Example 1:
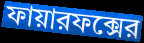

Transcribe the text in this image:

ফায়ারফক্সের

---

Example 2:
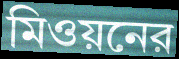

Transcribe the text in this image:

মিওয়নের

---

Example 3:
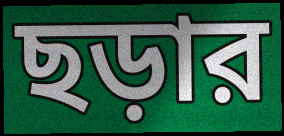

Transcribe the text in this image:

ছড়ার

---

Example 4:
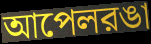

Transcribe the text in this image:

আপেলরঙা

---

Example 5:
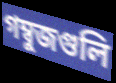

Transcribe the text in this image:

গম্বুজগুলি